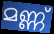
മണ്ണ്